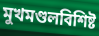
মুখমণ্ডলবিশিষ্ট